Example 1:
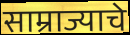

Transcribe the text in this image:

साम्राज्याचे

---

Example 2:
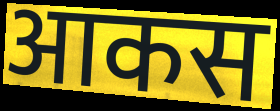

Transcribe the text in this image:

आकस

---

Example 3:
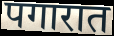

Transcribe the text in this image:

पगारात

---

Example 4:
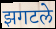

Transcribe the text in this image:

झगटले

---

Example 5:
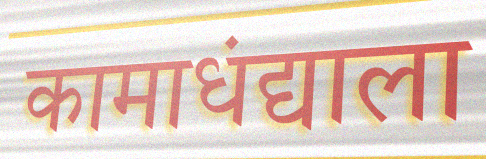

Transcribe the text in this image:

कामाधंद्याला